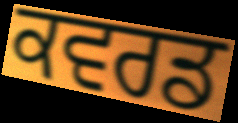
ਕਵਰਡ